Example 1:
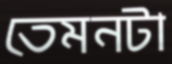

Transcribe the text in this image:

তেমনটা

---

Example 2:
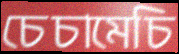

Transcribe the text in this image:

চেচামেচি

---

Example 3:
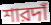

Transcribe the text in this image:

শারদাঁ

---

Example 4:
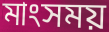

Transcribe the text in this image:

মাংসময়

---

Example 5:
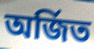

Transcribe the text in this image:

অর্জিত